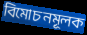
বিমোচনমূলক